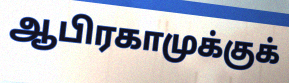
ஆபிரகாமுக்குக்